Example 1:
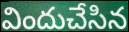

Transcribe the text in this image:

విందుచేసిన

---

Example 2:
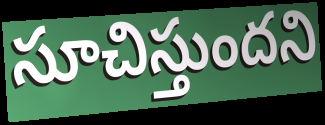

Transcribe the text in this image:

సూచిస్తుందని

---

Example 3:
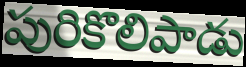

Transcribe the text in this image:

పురికొలిపాడు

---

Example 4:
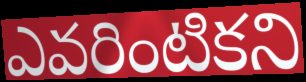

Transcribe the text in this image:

ఎవరింటికని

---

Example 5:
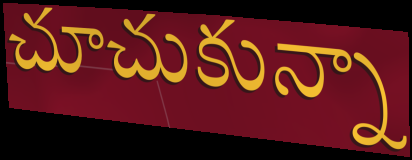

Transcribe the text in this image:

చూచుకున్నా